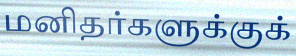
மனிதர்களுக்குக்